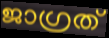
ജാഗ്രത്